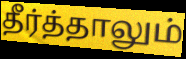
தீர்த்தாலும்